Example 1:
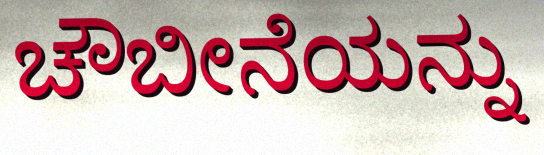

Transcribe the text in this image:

ಚೌಬೀನೆಯನ್ನು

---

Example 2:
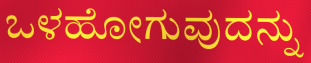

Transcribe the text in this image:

ಒಳಹೋಗುವುದನ್ನು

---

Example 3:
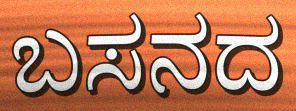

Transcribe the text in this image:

ಬಸನದ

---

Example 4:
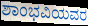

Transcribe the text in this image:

ಶಾಂಭವಿಯವರ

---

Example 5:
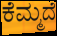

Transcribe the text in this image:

ಕೆಮ್ಮದೆ